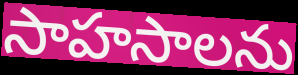
సాహసాలను